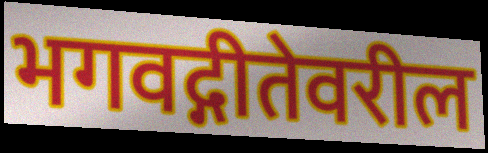
भगवद्गीतेवरील